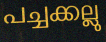
പച്ചക്കല്ലു